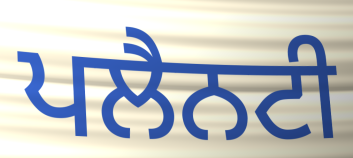
ਪਲੈਨਟੀ